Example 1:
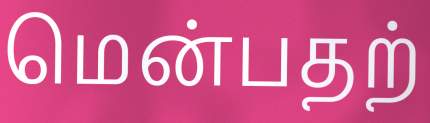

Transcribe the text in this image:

மென்பதற்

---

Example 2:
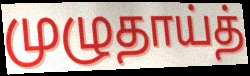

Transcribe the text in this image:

முழுதாய்த்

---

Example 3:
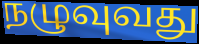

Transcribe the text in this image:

நழுவுவது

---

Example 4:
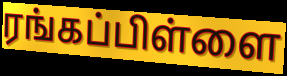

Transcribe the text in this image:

ரங்கப்பிள்ளை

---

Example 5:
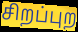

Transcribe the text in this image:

சிறப்புற